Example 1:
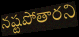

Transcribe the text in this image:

నష్టపోతారని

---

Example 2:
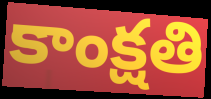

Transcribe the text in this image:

కాంక్షతి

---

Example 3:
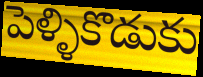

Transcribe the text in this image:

పెళ్ళికొడుకు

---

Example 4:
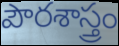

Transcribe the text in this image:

పౌరశాస్త్రం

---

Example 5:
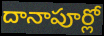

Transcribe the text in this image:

దానాపూర్లో